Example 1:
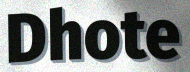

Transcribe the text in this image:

Dhote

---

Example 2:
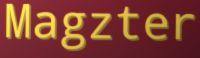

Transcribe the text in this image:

Magzter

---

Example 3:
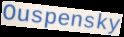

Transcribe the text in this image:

Ouspensky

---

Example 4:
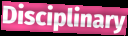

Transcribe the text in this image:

Disciplinary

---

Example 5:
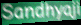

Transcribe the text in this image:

Sandhyaji